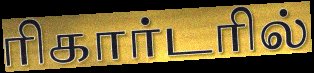
ரிகார்டரில்